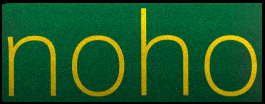
noho